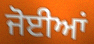
ਜੋਈਆਂ